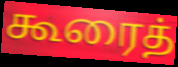
கூரைத்